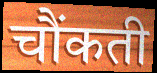
चौंकती